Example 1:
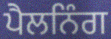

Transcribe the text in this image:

ਪੈਲਨਿੰਗ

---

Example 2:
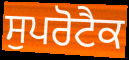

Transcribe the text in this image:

ਸੁਪਰੋਟੈਕ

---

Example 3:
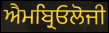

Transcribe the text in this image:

ਐਮਬ੍ਰਿਓਲੋਜੀ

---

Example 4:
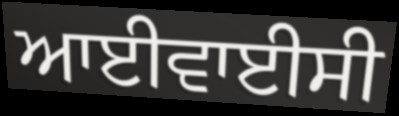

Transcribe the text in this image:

ਆਈਵਾਈਸੀ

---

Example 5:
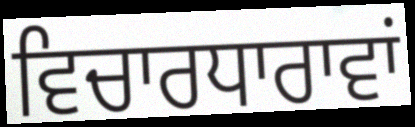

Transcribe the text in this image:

ਵਿਚਾਰਧਾਰਾਵਾਂ